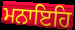
ਮਨਾਇਹਿ